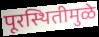
पूरस्थितीमुळे